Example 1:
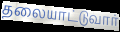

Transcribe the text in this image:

தலையாட்டுவார்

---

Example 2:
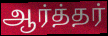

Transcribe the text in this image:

ஆர்த்தர்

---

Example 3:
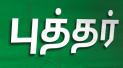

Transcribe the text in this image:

புத்தர்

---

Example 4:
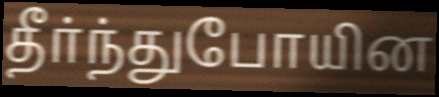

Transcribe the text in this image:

தீர்ந்துபோயின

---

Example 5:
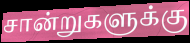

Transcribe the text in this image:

சான்றுகளுக்கு